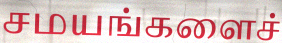
சமயங்களைச்